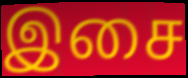
இசை